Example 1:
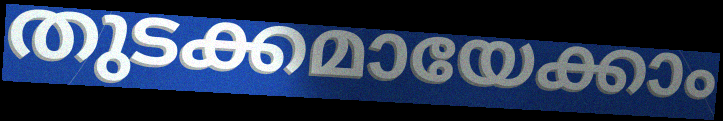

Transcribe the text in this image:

തുടക്കമായേക്കാം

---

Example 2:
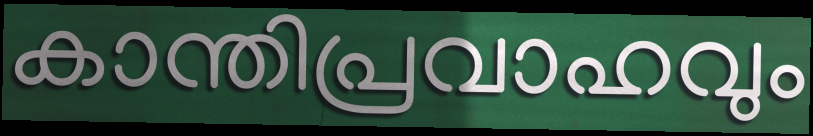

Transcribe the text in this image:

കാന്തിപ്രവാഹവും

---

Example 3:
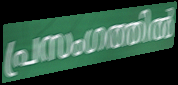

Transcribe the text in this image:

പ്രസംഗത്തിൽ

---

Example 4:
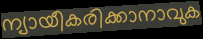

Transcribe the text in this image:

ന്യായീകരിക്കാനാവുക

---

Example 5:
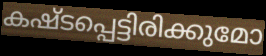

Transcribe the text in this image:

കഷ്ടപ്പെട്ടിരിക്കുമോ